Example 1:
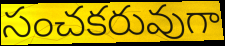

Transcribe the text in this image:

సంచకరువుగా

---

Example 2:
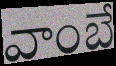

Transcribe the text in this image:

వాంబే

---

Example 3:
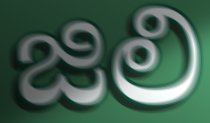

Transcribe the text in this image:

జిలి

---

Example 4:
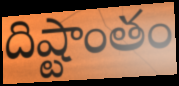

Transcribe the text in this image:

దిష్టాంతం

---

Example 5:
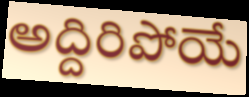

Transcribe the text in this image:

అద్దిరిపోయే